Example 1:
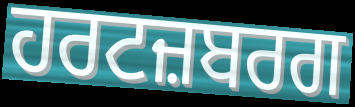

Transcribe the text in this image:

ਹਰਟਜ਼ਬਰਗ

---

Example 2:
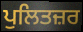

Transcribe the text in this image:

ਪੁਲਿਤਜ਼ਰ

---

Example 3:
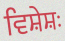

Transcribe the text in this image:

ਵਿਸ਼ੇਸ਼ਃ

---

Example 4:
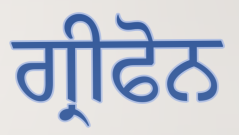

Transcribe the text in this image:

ਗ੍ਰੀਫੋਨ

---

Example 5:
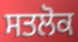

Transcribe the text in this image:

ਸਤਲੋਕ